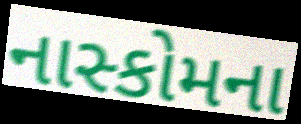
નાસ્કોમના